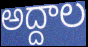
అద్దాల